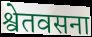
श्वेतवसना